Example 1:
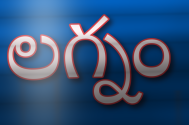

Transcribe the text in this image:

లగ్నం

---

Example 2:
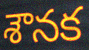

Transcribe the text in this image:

శౌనక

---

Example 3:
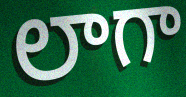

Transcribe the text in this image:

లాగా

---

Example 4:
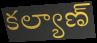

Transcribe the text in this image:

కల్యాణ్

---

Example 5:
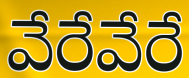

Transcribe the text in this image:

వేరేవేరే